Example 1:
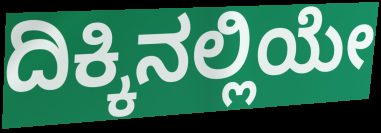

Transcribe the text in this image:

ದಿಕ್ಕಿನಲ್ಲಿಯೇ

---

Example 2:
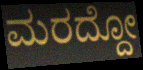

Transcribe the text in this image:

ಮರದ್ದೋ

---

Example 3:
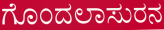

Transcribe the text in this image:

ಗೊಂದಲಾಸುರನ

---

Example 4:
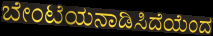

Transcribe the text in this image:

ಬೇಂಟೆಯನಾಡಿಸಿದೆಯೆಂದ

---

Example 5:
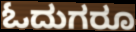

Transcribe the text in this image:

ಓದುಗರೂ